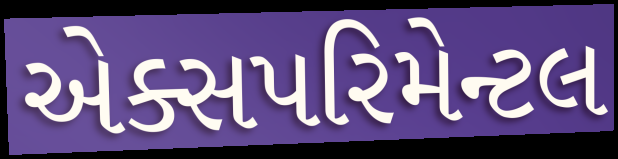
એક્સપરિમેન્ટલ